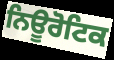
ਨਿਊਰੋਟਿਕ